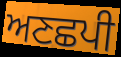
ਅਣਛਪੀ